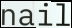
nail